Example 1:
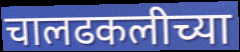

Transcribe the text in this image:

चालढकलीच्या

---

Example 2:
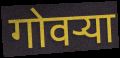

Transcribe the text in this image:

गोवर्‍या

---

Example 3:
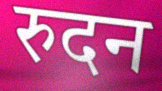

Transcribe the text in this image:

रुदन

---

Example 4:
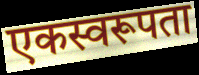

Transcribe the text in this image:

एकस्वरूपता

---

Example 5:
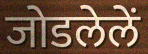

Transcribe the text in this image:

जोडलेलें